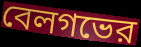
বেলগভের